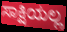
ಸಾಕ್ಷಿಯಲ್ಲ